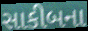
સાકીબના